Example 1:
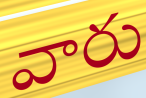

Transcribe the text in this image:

వారు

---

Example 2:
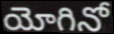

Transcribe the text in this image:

యోగినో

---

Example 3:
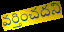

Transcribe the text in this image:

వర్తించదని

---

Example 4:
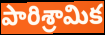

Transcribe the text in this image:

పారిశ్రామిక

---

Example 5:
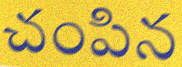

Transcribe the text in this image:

చంపిన